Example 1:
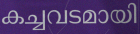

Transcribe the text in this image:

കച്ചവടമായി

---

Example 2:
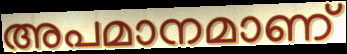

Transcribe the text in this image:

അപമാനമാണ്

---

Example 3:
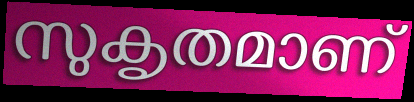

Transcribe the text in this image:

സുകൃതമാണ്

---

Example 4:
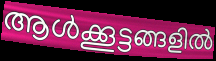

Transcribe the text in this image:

ആൾക്കൂട്ടങ്ങളിൽ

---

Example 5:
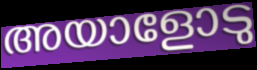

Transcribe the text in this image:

അയാളോടു